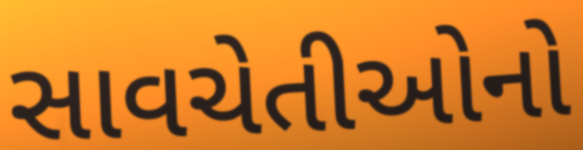
સાવચેતીઓનો